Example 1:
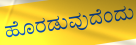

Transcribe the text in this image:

ಹೊರಡುವುದೆಂದು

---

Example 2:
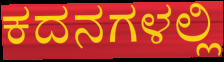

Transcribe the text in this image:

ಕದನಗಳಲ್ಲಿ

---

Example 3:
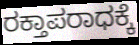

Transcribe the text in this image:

ರಕ್ತಾಪರಾಧಕ್ಕೆ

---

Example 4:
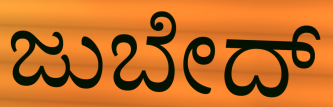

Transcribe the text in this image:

ಜುಬೇದ್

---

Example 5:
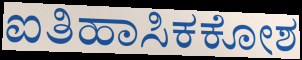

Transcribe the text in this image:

ಐತಿಹಾಸಿಕಕೋಶ